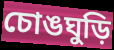
চোঙঘুড়ি